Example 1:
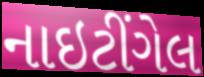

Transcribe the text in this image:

નાઇટીંગેલ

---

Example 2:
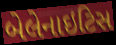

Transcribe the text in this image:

બેલેનાઇટિસ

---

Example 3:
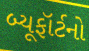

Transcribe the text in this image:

બ્યૂફૉર્ટનો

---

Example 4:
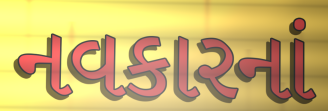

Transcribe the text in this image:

નવકારનાં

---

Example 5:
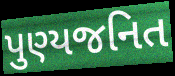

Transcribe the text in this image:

પુણ્યજનિત